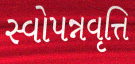
સ્વોપન્નવૃત્તિ